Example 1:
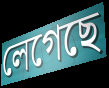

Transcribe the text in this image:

লেগেছে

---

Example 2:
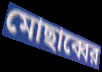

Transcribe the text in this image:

মোছাব্বের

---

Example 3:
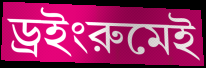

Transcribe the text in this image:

ড্রইংরুমেই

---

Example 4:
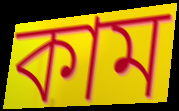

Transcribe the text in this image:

কাম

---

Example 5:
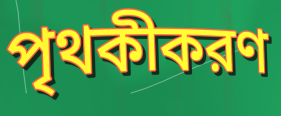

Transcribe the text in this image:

পৃথকীকরণ